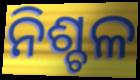
ନିଶ୍ଚଳ